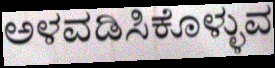
ಅಳವಡಿಸಿಕೊಳ್ಳುವ